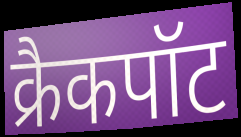
क्रैकपॉट